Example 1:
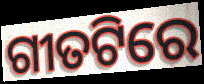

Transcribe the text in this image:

ଗୀତଟିରେ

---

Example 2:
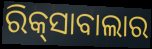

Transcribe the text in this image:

ରିକ୍‌ସାବାଲାର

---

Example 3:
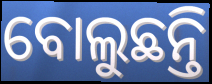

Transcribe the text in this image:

ବୋଲୁଛନ୍ତି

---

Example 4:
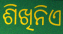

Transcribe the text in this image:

ଶିଖିନିଏ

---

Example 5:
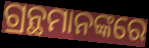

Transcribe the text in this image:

ଗ୍ରନ୍ଥମାନଙ୍କରେ